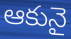
ఆకునై